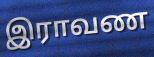
இராவண